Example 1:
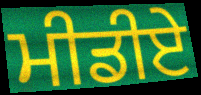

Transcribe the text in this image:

ਮੀਡੀਏ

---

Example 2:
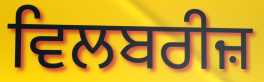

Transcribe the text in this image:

ਵਿਲਬਰੀਜ਼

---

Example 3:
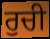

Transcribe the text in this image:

ਰੁਚੀ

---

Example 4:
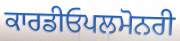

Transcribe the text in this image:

ਕਾਰਡੀਓਪਲਮੋਨਰੀ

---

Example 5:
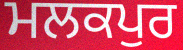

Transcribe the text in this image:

ਮਲਕਪੁਰ